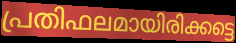
പ്രതിഫലമായിരിക്കട്ടെ